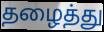
தழைத்து